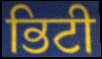
ਭਿਟੀ